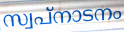
സ്വപ്നാടനം